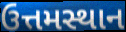
ઉત્તમસ્થાન